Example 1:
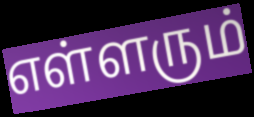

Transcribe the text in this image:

எள்ளரும்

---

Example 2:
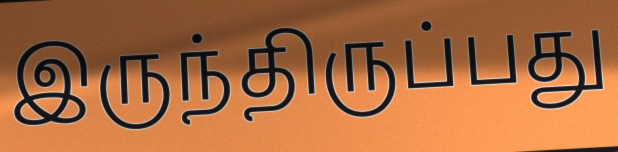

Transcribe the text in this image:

இருந்திருப்பது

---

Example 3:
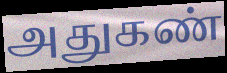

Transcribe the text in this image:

அதுகண்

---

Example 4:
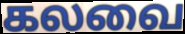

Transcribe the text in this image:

கலவை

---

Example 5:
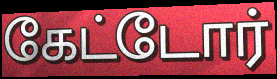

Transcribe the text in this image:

கேட்டோர்